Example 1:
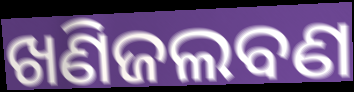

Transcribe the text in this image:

ଖଣିଜଲବଣ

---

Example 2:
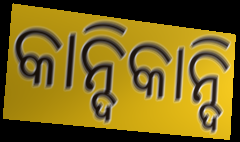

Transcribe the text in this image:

କାନ୍ଦିକାନ୍ଦି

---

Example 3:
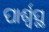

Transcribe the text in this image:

ପାର୍ଶ୍ୱସ୍ଥ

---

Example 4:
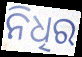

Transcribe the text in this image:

ନିଧିର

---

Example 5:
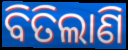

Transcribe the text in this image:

ବିତିଲାଣି